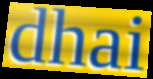
dhai